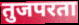
तुजपरता